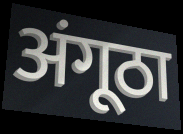
अंगूठा